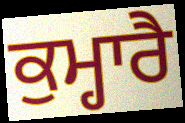
ਕੁਮ੍ਹ੍ਹਾਰੈ